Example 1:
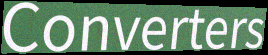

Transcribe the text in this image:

Converters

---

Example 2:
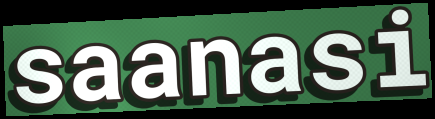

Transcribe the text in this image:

saanasi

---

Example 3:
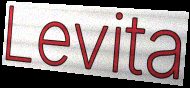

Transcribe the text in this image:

Levita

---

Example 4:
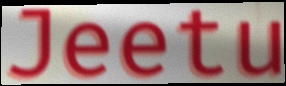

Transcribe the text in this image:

Jeetu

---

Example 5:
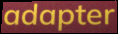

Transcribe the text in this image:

adapter